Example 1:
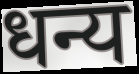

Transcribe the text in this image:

धन्य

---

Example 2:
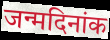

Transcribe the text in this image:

जन्मदिनांक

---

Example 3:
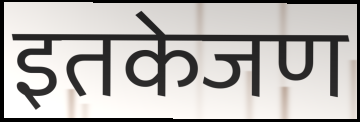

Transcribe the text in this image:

इतकेजण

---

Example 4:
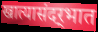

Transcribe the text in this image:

खात्यासंदर्भात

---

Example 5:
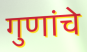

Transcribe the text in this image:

गुणांचे